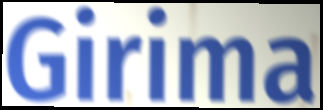
Girima